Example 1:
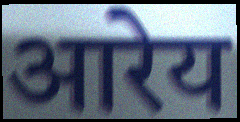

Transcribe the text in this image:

आरेय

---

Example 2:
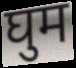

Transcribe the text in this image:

घुम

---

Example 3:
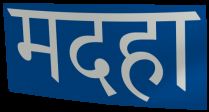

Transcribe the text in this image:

मदहा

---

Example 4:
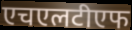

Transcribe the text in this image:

एचएलटीएफ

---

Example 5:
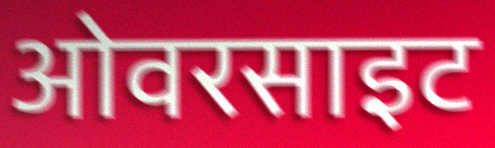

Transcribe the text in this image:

ओवरसाइट